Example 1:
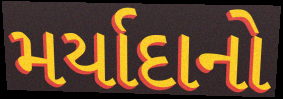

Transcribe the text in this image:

મર્યાદાનો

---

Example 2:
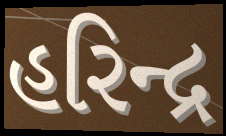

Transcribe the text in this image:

હરિન્દ્ર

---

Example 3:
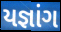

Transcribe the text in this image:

યજ્ઞાંગ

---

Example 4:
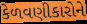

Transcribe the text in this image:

કેળવણીકારોને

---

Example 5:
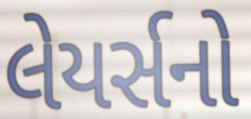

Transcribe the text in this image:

લેયર્સનો